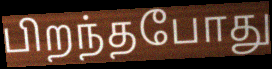
பிறந்தபோது